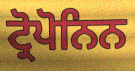
ਟ੍ਰੋਪੋਨਿਨ